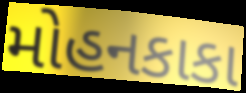
મોહનકાકા